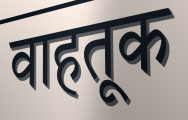
वाहतूक